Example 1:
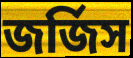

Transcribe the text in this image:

জর্জিস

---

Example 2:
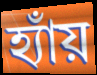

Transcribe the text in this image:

হ্যাঁয়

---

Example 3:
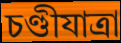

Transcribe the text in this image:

চণ্ডীযাত্রা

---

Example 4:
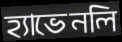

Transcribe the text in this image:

হ্যাভেনলি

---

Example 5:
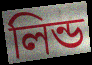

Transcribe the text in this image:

লিন্ড